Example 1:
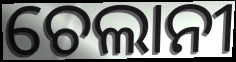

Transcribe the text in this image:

ଚେଲାନୀ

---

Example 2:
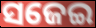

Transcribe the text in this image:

ସଜେଇ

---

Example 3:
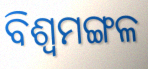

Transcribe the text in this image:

ବିଶ୍ୱମଙ୍ଗଳ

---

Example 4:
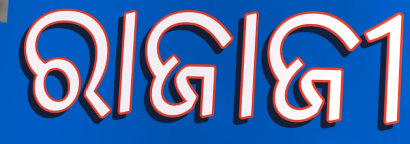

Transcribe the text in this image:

ରାଜାଜୀ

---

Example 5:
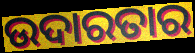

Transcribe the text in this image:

ଉଦାରତାର